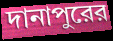
দানাপুরের